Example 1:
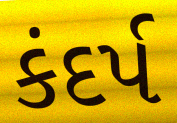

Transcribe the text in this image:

કંદર્પ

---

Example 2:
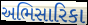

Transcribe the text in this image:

અભિસારિકા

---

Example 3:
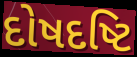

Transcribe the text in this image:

દોષદષ્ટિ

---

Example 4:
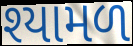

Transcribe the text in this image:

શ્યામળ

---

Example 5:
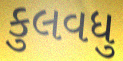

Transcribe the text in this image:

કુલવધુ